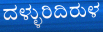
ದಳ್ಳುರಿದಿರುಳ